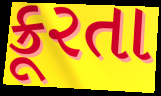
ક્રૂરતા